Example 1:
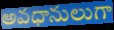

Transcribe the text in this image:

అవధానులుగా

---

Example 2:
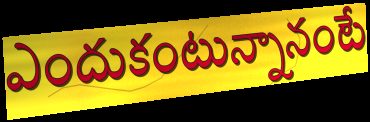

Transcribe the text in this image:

ఎందుకంటున్నానంటే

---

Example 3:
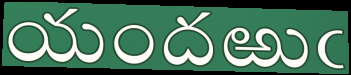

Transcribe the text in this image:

యందఱుఁ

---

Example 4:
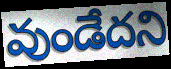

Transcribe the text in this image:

వుండేదని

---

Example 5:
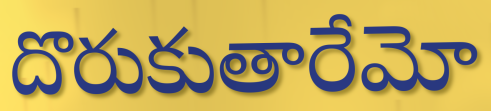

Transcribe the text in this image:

దొరుకుతారేమో